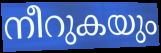
നീറുകയും